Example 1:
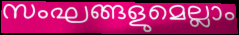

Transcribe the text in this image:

സംഘങ്ങളുമെല്ലാം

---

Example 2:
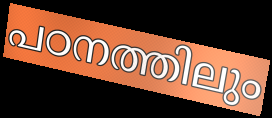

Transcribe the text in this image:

പഠനത്തിലും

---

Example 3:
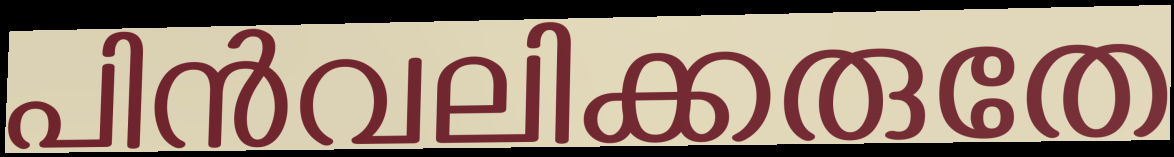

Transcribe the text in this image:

പിൻവലിക്കരുതേ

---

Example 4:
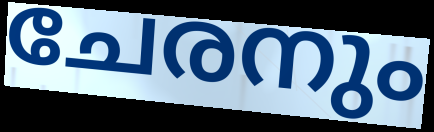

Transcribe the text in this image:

ചേരനും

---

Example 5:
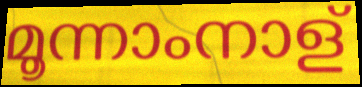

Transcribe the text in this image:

മൂന്നാംനാള്